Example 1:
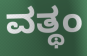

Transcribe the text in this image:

ವತ್ಥಂ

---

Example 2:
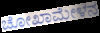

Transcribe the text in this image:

ಚೋಖಾಮೇಳನ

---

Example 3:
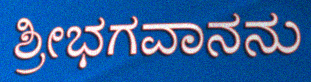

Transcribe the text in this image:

ಶ್ರೀಭಗವಾನನು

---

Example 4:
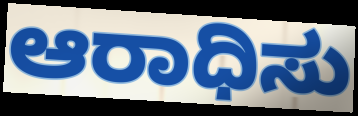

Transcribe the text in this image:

ಆರಾಧಿಸು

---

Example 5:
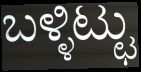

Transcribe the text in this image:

ಬಳ್ಳಿಟ್ಟು